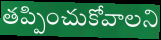
తప్పించుకోవాలని